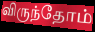
விருந்தோம்